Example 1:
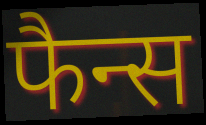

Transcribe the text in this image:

फैन्स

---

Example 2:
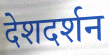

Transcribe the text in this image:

देशदर्शन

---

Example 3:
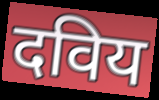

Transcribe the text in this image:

दविय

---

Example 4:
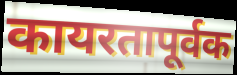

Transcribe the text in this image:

कायरतापूर्वक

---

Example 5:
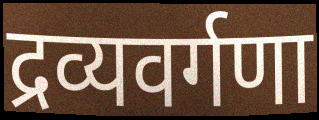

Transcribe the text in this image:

द्रव्यवर्गणा